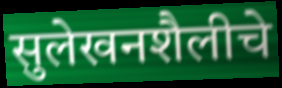
सुलेखनशैलीचे